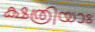
ക്ഷത്രിയാഃ